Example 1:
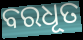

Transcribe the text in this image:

ବରଧୂତ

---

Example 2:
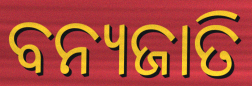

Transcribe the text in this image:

ବନ୍ୟଜାତି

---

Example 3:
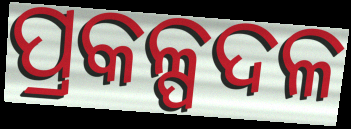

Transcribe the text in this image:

ପ୍ରକଳ୍ପଦଳ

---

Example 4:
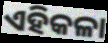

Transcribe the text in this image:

ଏହିକଳା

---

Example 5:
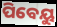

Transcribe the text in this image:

ପିବେୟୁ